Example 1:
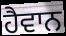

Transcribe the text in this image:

ਹੈਵਾਨ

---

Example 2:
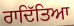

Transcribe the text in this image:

ਰਾਦਿੱਤਿਆ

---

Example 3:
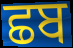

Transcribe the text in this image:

ਛਬ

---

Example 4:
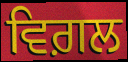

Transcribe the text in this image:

ਵਿਗ਼ਲ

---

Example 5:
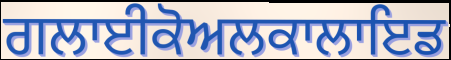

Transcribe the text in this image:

ਗਲਾਈਕੋਅਲਕਾਲਾਇਡ